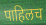
पाहिलच